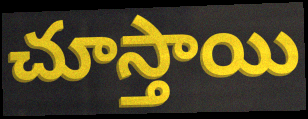
చూస్తాయి